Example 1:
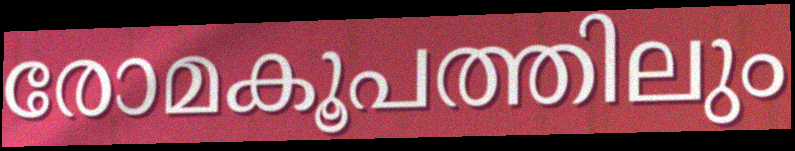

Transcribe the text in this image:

രോമകൂപത്തിലും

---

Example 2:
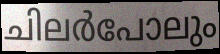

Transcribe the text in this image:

ചിലർപോലും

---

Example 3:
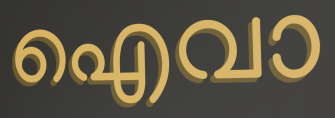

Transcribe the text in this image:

ഐവാ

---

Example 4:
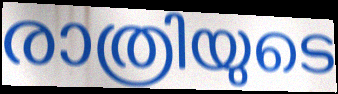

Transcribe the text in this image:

രാത്രിയുടെ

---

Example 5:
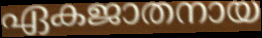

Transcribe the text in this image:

ഏകജാതനായ